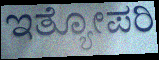
ಇತ್ಯೋಪರಿ